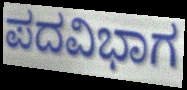
ಪದವಿಭಾಗ